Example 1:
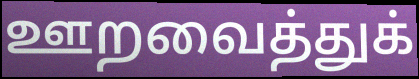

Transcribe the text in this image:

ஊறவைத்துக்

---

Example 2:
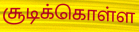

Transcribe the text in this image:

சூடிக்கொள்ள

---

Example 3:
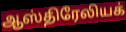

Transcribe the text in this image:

ஆஸ்திரேலியக்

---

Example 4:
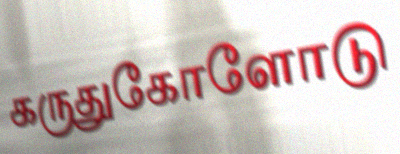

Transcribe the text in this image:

கருதுகோளோடு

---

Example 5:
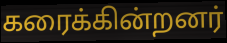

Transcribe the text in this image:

கரைக்கின்றனர்